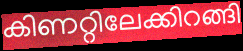
കിണറ്റിലേക്കിറങ്ങി